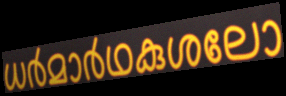
ധർമാർഥകുശലോ